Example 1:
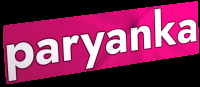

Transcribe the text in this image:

paryanka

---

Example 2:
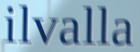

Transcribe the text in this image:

ilvalla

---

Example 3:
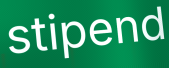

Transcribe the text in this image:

stipend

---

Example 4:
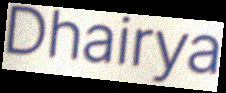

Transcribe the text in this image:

Dhairya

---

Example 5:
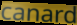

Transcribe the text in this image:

canard